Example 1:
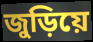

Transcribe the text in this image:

জুড়িয়ে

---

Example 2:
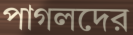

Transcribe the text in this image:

পাগলদের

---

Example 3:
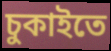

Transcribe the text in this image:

চুকাইতে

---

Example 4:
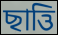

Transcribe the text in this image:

ছাত্তি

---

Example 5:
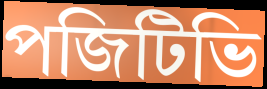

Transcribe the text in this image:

পজিটিভি